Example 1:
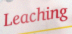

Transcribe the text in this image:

Leaching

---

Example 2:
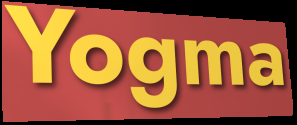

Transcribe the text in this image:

Yogma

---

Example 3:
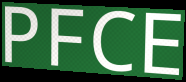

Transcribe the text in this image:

PFCE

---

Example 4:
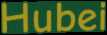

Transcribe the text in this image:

Hubei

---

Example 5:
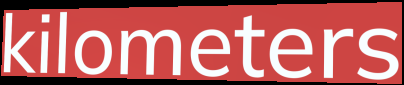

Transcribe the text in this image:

kilometers